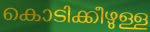
കൊടിക്കീഴുള്ള